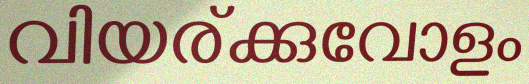
വിയര്ക്കുവോളം